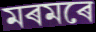
মৰমৰে